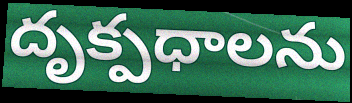
దృక్పధాలను